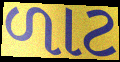
ળાટ